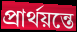
প্রার্থয়ন্তে